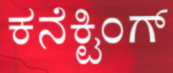
ಕನೆಕ್ಟಿಂಗ್